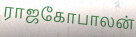
ராஜகோபாலன்